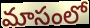
మాసంలో